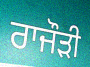
ਰਾਜੌੜੀ